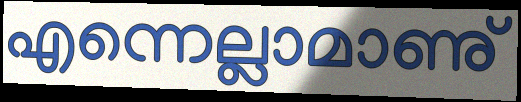
എന്നെല്ലാമാണു്